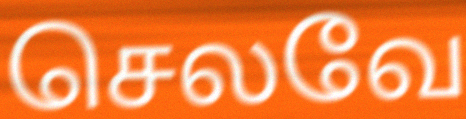
செலவே